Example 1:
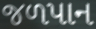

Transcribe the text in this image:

જળપાન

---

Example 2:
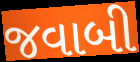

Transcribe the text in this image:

જવાબી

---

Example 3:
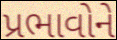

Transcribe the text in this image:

પ્રભાવોને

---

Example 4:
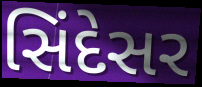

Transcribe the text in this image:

સિંદેસર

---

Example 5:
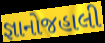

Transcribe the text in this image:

જ્ઞાનોજહાલી